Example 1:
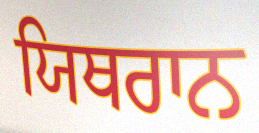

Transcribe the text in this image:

ਯਿਥਰਾਨ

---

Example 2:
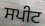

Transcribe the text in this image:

ਸਪੀਟ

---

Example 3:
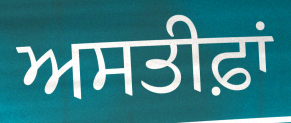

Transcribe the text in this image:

ਅਸਤੀਫ਼ਾਂ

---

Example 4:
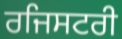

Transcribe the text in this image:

ਰਜਿਸਟਰੀ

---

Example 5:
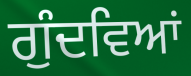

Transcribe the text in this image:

ਗੁੰਦਵਿਆਂ